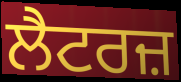
ਲੈਟਰਜ਼